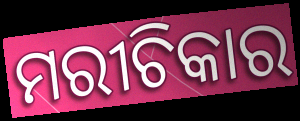
ମରୀଚିକାର